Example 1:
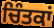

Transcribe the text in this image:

ਚਿੰਤਕਾਂ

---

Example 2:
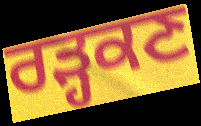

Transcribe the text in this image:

ਰੜ੍ਹਕਣ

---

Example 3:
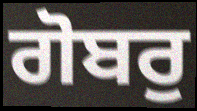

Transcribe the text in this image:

ਗੋਬਰੁ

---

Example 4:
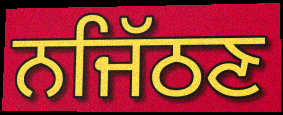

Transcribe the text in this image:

ਨਜਿੱਠਣ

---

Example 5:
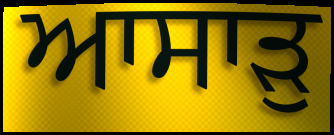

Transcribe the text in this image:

ਆਸਾੜੁ